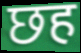
छह